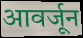
आवर्जून